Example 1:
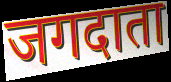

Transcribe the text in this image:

जगदाता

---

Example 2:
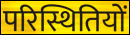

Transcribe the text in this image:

परिस्थितियों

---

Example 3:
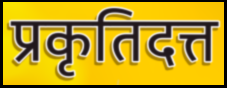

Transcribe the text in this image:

प्रकृतिदत्त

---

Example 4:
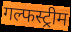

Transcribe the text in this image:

गल्फस्ट्रीम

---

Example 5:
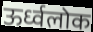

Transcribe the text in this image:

ऊर्ध्वलोक